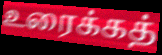
உரைக்கத்